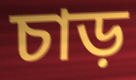
চাড়